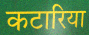
कटारिया